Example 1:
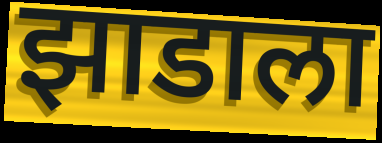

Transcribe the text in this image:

झाडाला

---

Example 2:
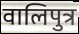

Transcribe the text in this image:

वालिपुत्र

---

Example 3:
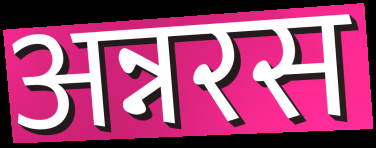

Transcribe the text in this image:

अन्नरस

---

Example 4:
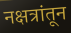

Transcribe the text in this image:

नक्षत्रांतून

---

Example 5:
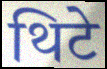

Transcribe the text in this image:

थिटे